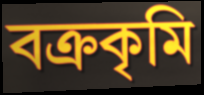
বক্রকৃমি